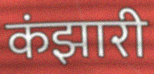
कंझारी